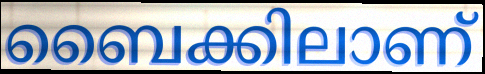
ബൈക്കിലാണ്